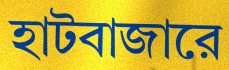
হাটবাজারে